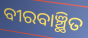
ବୀରବାଞ୍ଛିତ